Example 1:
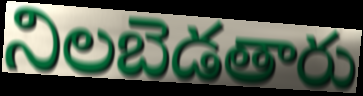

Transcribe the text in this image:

నిలబెడతారు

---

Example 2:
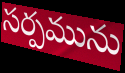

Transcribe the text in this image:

సర్పమును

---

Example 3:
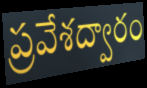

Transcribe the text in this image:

ప్రవేశద్వారం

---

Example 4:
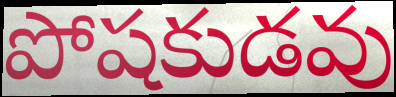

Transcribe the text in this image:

పోషకుడవు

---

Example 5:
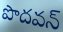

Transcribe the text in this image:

పొదవన్